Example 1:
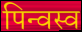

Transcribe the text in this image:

पिन्वस्व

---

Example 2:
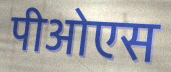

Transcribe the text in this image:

पीओएस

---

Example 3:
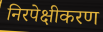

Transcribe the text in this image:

निरपेक्षीकरण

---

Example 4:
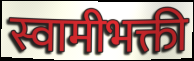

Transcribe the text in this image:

स्वामीभक्ती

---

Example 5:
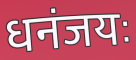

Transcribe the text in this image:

धनंजयः